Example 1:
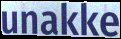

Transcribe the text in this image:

unakke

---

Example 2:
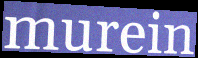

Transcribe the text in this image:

murein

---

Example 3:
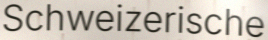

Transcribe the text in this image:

Schweizerische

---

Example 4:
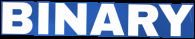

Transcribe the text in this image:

BINARY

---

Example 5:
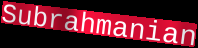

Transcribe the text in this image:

Subrahmanian